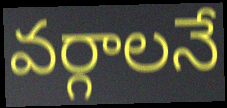
వర్గాలనే